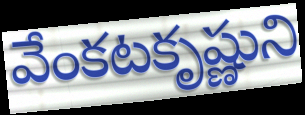
వేంకటకృష్ణుని